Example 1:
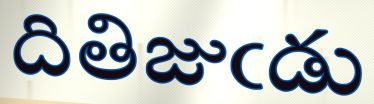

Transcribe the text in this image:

దితిజుఁడు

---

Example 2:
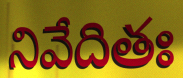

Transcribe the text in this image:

నివేదితః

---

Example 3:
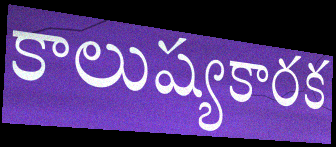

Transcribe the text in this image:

కాలుష్యకారక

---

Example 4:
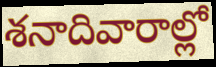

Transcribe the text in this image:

శనాదివారాల్లో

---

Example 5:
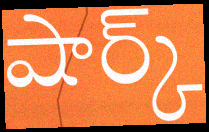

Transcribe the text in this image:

షార్క్